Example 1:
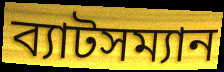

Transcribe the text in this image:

ব্যাটসম্যান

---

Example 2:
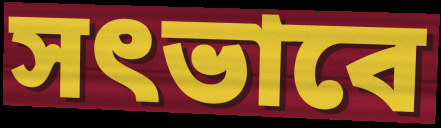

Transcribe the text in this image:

সৎভাবে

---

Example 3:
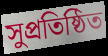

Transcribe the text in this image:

সুপ্রতিষ্ঠিত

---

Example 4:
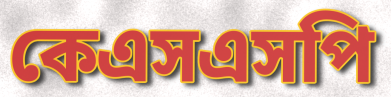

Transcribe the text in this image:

কেএসএসপি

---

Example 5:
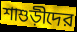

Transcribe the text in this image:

শাশুড়ীদের